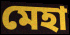
মেহা